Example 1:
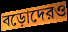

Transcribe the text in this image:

বড়োদেরও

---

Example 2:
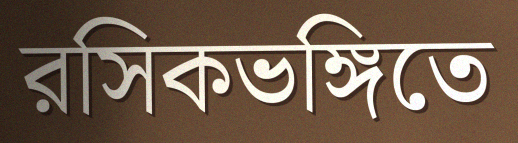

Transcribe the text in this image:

রসিকভঙ্গিতে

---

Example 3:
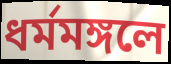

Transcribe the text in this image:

ধর্মমঙ্গলে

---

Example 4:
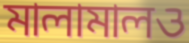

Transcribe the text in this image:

মালামালও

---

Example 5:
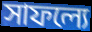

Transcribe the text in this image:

সাফল্যে